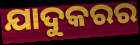
ଯାଦୁକରର